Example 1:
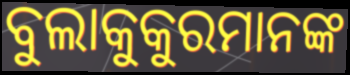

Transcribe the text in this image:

ବୁଲାକୁକୁରମାନଙ୍କ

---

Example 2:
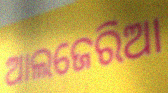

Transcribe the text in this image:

ଆଲଜେରିଆ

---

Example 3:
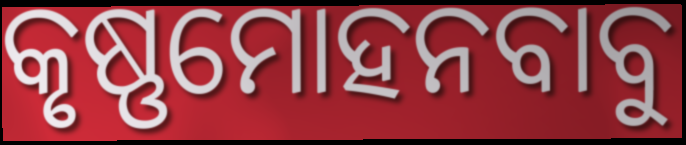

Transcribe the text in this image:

କୃଷ୍ଣମୋହନବାବୁ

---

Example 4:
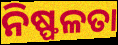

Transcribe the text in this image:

ନିଷ୍ଫଳତା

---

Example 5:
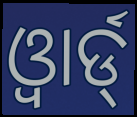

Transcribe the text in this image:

ଓ୍ୱାର୍ଡ୍